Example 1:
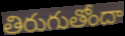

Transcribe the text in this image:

తిరుగుతోందా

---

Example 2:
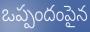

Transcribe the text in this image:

ఒప్పందంపైన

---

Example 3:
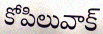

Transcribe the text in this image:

కోపిలువాక్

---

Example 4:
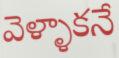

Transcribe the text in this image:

వెళ్ళాకనే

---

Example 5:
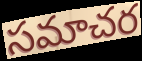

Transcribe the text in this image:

సమాచర